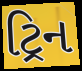
ટ્રિન